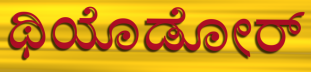
ಥಿಯೊಡೋರ್